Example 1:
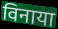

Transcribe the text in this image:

विनाया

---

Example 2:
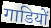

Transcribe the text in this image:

गाडियों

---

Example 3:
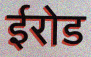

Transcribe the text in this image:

ईरोड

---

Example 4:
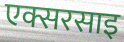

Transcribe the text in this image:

एक्सरसाइ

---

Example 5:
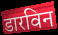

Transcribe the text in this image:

डारविन